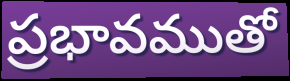
ప్రభావముతో